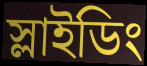
স্লাইডিং